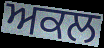
ਅਕਲ